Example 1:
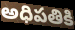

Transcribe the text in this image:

అధిపతికి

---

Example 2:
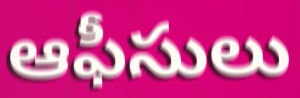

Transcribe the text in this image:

ఆఫీసులు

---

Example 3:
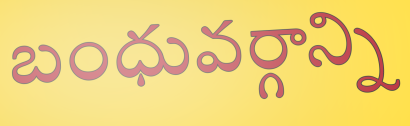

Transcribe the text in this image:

బంధువర్గాన్ని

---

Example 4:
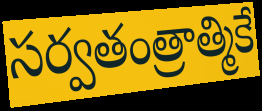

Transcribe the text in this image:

సర్వతంత్రాత్మికే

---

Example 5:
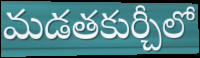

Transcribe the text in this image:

మడతకుర్చీలో